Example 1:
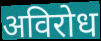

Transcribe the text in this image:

अविरोध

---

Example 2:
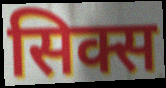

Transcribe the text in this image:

सिक्स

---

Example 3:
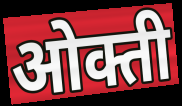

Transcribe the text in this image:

ओक्ती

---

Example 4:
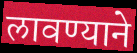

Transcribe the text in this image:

लावण्याने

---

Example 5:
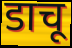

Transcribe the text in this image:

डाचू